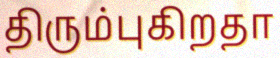
திரும்புகிறதா